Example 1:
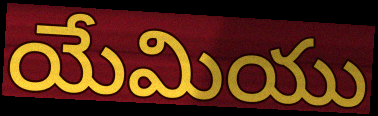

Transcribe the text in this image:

యేమియు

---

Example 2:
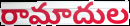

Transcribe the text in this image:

రామాదుల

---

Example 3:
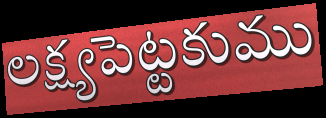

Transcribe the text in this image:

లక్ష్యపెట్టకుము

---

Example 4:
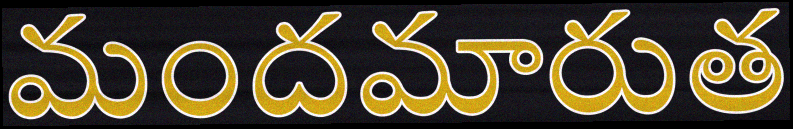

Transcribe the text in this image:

మందమారుత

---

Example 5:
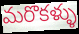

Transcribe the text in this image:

మరొకళ్ళు